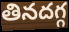
తినదగ్గ